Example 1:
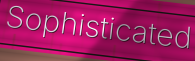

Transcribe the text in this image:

Sophisticated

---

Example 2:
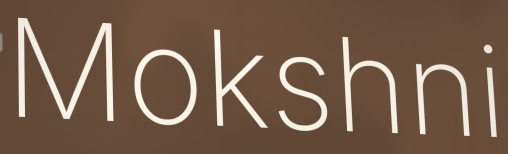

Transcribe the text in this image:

Mokshni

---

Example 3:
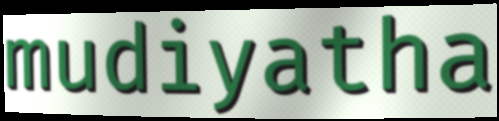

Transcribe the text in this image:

mudiyatha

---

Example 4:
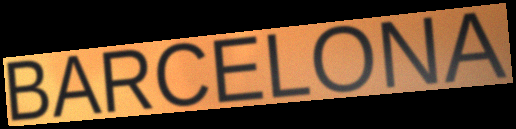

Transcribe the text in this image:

BARCELONA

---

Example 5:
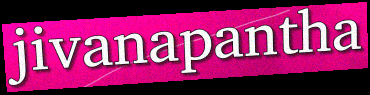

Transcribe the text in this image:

jivanapantha